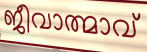
ജീവാത്മാവ്